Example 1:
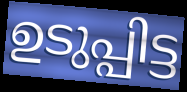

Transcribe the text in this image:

ഉടുപ്പിട്ട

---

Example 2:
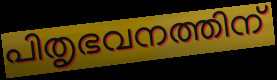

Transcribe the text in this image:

പിതൃഭവനത്തിന്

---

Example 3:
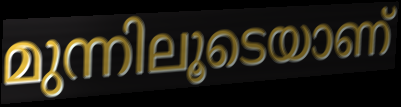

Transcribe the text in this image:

മുന്നിലൂടെയാണ്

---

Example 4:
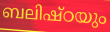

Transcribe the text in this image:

ബലിഷ്ഠയും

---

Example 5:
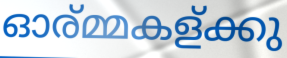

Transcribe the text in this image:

ഓര്മ്മകള്ക്കു